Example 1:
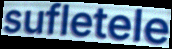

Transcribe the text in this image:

sufletele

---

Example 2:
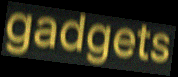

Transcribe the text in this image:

gadgets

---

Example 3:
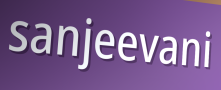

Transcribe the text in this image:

sanjeevani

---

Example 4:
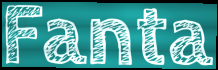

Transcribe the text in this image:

Fanta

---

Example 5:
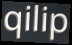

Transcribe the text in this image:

qilip